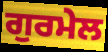
ਗੁਰਮੇਲ